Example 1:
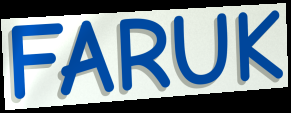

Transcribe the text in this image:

FARUK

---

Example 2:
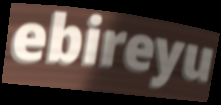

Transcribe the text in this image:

ebireyu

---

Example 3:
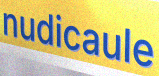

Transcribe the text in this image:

nudicaule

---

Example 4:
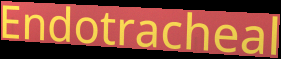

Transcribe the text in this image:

Endotracheal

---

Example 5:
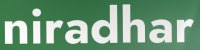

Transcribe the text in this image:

niradhar